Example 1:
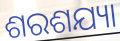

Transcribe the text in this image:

ଶରଶଯ୍ୟା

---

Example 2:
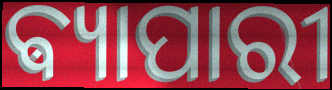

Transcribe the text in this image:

ଵ୍ୟାପାରୀ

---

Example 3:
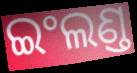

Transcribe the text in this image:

ଇଂଲଣ୍ଡ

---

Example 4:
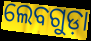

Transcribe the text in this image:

ଲେବଗୁଡ଼ା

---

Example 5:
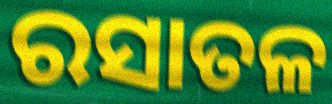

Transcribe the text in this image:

ରସାତଳ